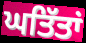
ਘਤਿੱਤਾਂ